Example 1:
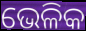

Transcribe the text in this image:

ଭେଳିକ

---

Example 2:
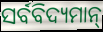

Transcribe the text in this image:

ସର୍ବବିଦ୍ୟମାନ୍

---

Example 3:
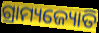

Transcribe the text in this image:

ଗ୍ରାମ୍ୟଜ୍ୟୋତି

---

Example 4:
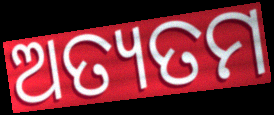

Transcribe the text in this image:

ଅତ୍ୟତମ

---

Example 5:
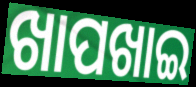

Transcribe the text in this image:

ଖାପଖାଇ